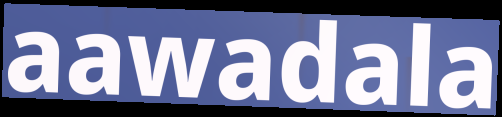
aawadala